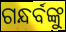
ଗନ୍ଧର୍ବଙ୍କୁ